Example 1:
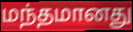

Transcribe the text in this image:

மந்தமானது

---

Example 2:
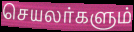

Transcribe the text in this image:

செயலர்களும்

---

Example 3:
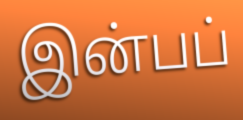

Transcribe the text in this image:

இன்பப்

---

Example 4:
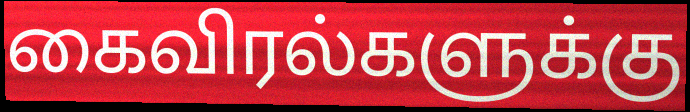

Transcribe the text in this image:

கைவிரல்களுக்கு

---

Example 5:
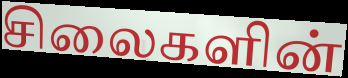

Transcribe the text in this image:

சிலைகளின்